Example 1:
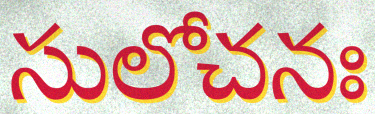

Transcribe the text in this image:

సులోచనః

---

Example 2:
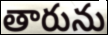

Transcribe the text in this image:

తారును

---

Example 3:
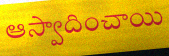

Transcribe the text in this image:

ఆస్వాదించాయి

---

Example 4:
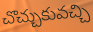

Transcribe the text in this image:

చొచ్చుకువచ్చి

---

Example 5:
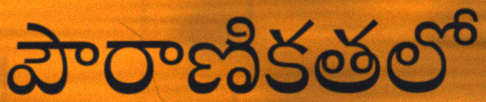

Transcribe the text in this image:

పౌరాణికతలో